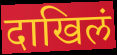
दाखिलं